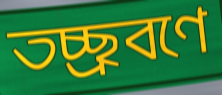
তচ্ছ্রবণে